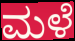
ಮಳೆ